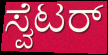
ಸ್ವೆಟರ್